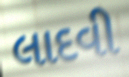
લાદવી